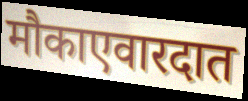
मौकाएवारदात